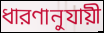
ধারণানুযায়ী